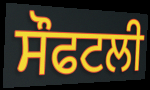
ਸੌਫਟਲੀ